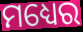
ମଧ୍ୟେର